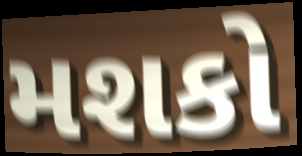
મશકો